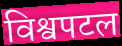
विश्वपटल